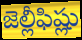
జెల్లీఫిష్లు